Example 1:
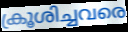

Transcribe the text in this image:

ക്രൂശിച്ചവരെ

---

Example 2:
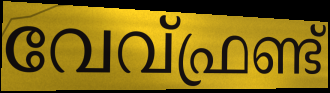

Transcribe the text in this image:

വേവ്ഫ്രണ്ട്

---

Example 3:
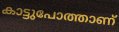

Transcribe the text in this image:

കാട്ടുപോത്താണ്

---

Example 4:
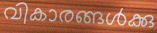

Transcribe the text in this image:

വികാരങ്ങൾക്കു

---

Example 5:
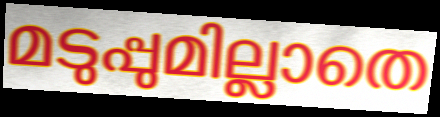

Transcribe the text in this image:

മടുപ്പുമില്ലാതെ